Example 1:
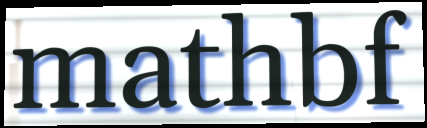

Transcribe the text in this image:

mathbf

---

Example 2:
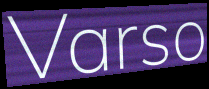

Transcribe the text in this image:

Varso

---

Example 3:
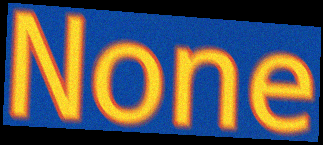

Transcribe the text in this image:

None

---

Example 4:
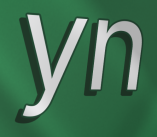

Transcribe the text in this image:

yn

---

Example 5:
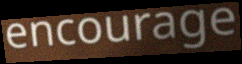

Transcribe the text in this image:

encourage